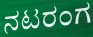
ನಟರಂಗ